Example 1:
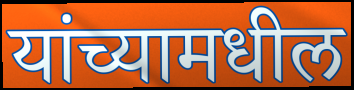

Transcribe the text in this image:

यांच्यामधील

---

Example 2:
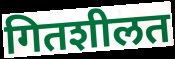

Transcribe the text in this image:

गितशीलत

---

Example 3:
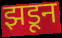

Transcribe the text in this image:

झडून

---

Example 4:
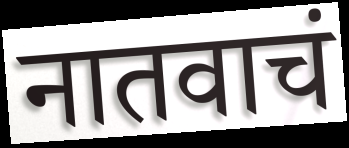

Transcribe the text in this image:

नातवाचं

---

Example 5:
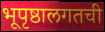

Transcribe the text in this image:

भूपृष्ठालगतची